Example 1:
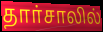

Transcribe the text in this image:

தார்சாலில்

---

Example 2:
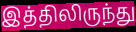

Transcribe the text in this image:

இத்திலிருந்து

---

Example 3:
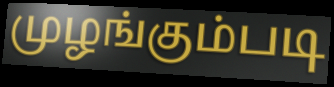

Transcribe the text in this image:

முழங்கும்படி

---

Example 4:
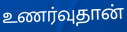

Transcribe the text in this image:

உணர்வுதான்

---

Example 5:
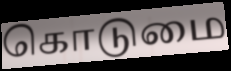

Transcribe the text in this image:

கொடுமை